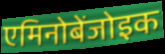
एमिनोबेंजोइक